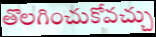
తొలగించుకోవచ్చు